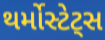
થર્મોસ્ટેટ્સ